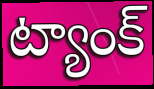
ట్యాంక్